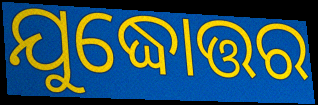
ଯୁଦ୍ଧୋତ୍ତର